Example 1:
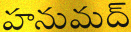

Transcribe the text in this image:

హనుమద్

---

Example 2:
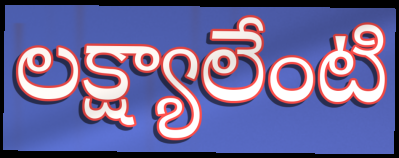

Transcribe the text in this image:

లక్ష్యాలేంటి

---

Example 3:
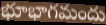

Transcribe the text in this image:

భూభాగమందు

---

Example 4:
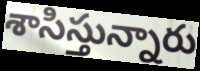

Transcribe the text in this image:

శాసిస్తున్నారు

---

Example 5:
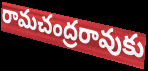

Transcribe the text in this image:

రామచంద్రరావుకు